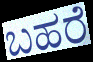
ಬಹರೆ